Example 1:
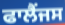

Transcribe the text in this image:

ਫਾਲੈਂਜਸ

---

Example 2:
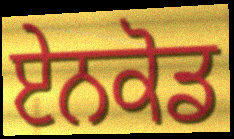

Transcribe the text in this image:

ਏਨਕੋਡ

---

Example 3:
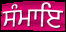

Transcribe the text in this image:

ਸੰਮਾਇ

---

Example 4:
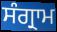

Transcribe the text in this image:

ਸੰਗ੍ਰਾਮ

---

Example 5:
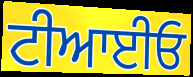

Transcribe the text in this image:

ਟੀਆਈਓ